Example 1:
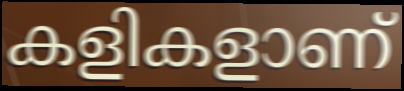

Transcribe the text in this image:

കളികളാണ്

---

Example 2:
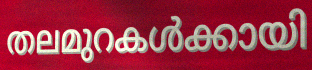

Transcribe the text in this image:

തലമുറകൾക്കായി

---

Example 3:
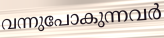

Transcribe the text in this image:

വന്നുപോകുന്നവർ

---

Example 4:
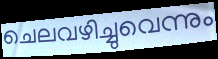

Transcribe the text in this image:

ചെലവഴിച്ചുവെന്നും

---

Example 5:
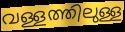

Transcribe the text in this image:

വള്ളത്തിലുള്ള